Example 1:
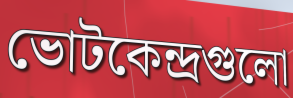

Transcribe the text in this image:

ভোটকেন্দ্রগুলো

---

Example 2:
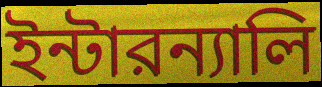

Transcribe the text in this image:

ইন্টারন্যালি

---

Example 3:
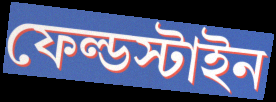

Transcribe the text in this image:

ফেল্ডস্টাইন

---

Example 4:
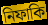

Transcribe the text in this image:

নিফাকি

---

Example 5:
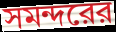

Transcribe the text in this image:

সমন্দরের